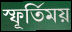
স্ফূর্তিময়